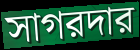
সাগরদার